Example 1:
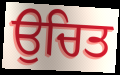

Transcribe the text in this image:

ਉਚਿਤ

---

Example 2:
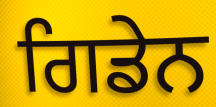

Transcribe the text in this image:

ਗਿਡੇਨ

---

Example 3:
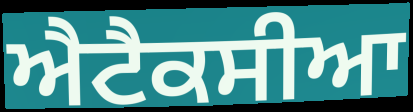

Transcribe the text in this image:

ਐਟੈਕਸੀਆ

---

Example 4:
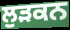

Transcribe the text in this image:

ਲੁੜਕਨ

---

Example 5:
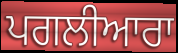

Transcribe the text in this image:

ਪਗਲੀਆਰਾ